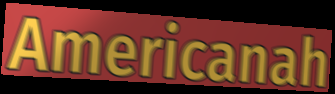
Americanah